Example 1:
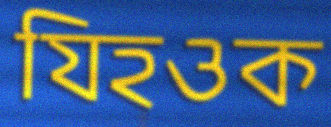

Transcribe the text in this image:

যিহওক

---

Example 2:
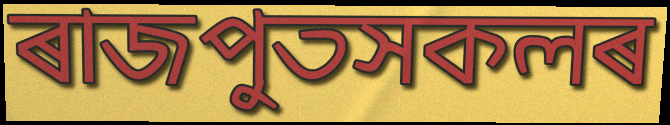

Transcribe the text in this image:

ৰাজপুতসকলৰ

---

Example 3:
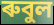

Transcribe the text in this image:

ৰুবুল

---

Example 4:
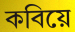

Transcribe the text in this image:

কবিয়ে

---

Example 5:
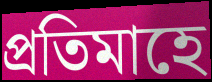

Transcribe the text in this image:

প্ৰতিমাহে